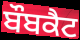
ਬੌਬਕੈਟ